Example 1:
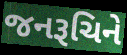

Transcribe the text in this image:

જનરૂચિને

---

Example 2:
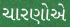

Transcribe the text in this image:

ચારણોએ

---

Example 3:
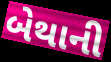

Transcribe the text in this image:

બેથાની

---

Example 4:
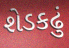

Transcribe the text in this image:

શેડકઢું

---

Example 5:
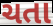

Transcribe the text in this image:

ચતા